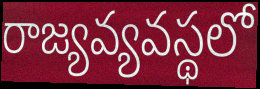
రాజ్యవ్యవస్థలో